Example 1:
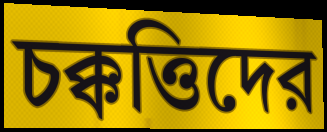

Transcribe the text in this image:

চক্কত্তিদের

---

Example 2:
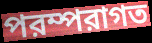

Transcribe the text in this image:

পরম্পরাগত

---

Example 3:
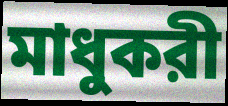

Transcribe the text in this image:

মাধুকরী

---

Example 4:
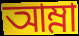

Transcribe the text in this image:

আম্না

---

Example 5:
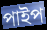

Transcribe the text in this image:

পাইপ